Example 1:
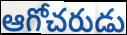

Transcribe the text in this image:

ఆగోచరుడు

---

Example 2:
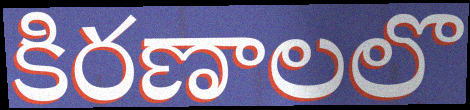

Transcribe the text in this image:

కిరణాలలొ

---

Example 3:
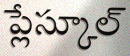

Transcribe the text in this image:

ప్లేస్కూల్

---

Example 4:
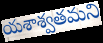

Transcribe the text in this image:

యశాశ్వతమని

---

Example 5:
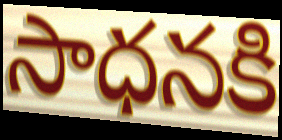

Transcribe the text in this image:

సాధనకి